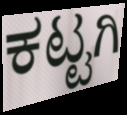
ಕಟ್ಟಗಿ